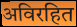
अविरहित